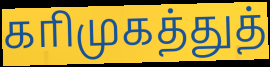
கரிமுகத்துத்